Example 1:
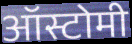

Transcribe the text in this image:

ऑस्टोमी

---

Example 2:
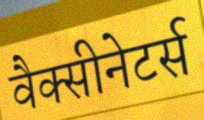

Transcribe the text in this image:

वैक्सीनेटर्स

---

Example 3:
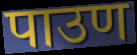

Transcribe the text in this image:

पाउण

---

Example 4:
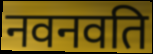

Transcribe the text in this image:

नवनवति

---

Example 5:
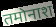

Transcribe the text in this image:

तमोनाश